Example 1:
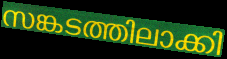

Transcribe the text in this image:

സങ്കടത്തിലാക്കി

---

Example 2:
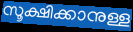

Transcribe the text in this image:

സൂക്ഷിക്കാനുള്ള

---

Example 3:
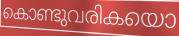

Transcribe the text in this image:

കൊണ്ടുവരികയൊ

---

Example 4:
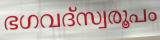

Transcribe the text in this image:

ഭഗവദ്സ്വരൂപം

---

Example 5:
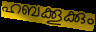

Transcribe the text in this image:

ഹബക്കൂക്കും